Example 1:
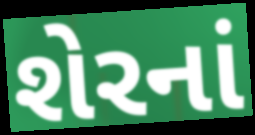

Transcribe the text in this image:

શેરનાં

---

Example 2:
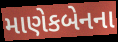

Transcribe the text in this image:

માણેકબેનના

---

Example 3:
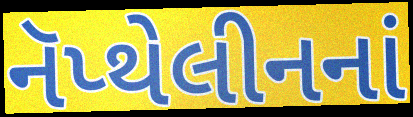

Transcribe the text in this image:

નૅપ્થેલીનનાં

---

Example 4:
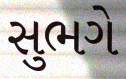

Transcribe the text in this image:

સુભગે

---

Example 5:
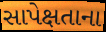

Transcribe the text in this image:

સાપેક્ષતાના